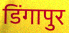
डिंगापुर